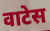
वाटेस